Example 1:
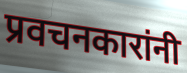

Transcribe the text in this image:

प्रवचनकारांनी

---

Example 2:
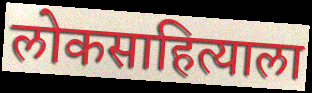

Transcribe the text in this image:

लोकसाहित्याला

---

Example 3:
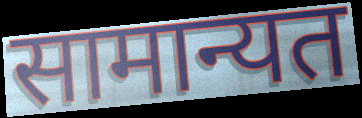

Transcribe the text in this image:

सामान्यत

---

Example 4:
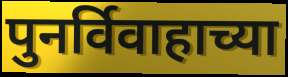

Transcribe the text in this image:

पुनर्विवाहाच्या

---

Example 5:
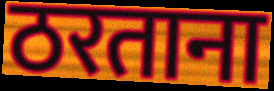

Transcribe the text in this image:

ठरताना